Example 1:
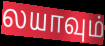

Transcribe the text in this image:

லயாவும்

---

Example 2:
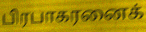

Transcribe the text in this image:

பிரபாகரனைக்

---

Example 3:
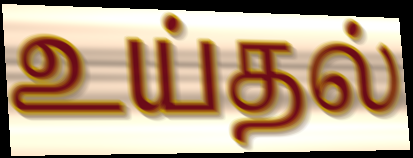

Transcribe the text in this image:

உய்தல்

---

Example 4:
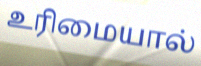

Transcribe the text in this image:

உரிமையால்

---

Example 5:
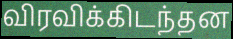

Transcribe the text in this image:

விரவிக்கிடந்தன